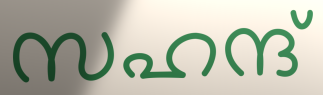
സഹന്ദ്